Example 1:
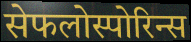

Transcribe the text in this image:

सेफलोस्पोरिन्स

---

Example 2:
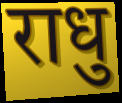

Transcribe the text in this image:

राधु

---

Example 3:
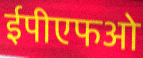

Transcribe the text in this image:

ईपीएफओ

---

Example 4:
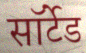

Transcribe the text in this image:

सॉर्टेड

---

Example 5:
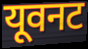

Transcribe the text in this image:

यूवनट